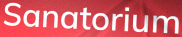
Sanatorium